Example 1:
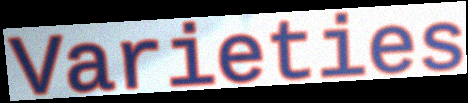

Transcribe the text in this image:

Varieties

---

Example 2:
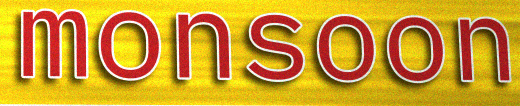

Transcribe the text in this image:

monsoon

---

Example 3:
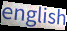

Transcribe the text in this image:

english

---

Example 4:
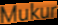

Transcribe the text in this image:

Mukur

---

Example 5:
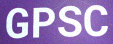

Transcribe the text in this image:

GPSC